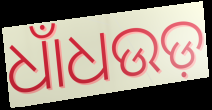
ଧାଁଧଉଡ଼